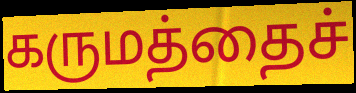
கருமத்தைச்